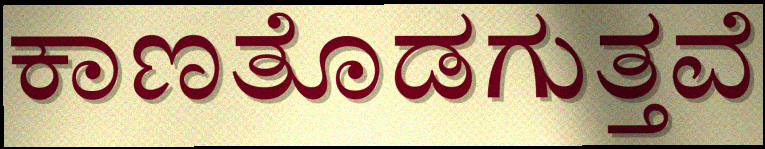
ಕಾಣತೊಡಗುತ್ತವೆ